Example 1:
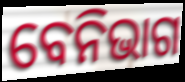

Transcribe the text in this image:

ବେନିଭାଗ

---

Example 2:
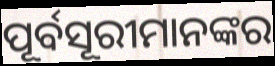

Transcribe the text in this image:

ପୂର୍ବସୂରୀମାନଙ୍କର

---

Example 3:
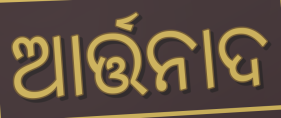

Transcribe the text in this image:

ଆର୍ତ୍ତନାଦ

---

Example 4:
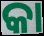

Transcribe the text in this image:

କା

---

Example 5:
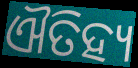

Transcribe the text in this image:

ଐତିହ୍ୟ